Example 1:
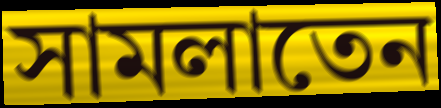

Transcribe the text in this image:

সামলাতেন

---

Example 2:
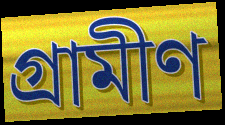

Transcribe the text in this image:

গ্রামীণ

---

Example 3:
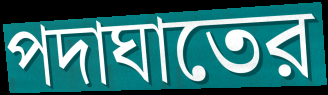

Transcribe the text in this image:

পদাঘাতের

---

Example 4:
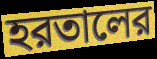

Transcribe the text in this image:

হরতালের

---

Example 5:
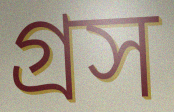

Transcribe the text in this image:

গ্রস